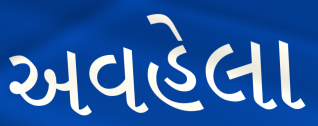
અવહેલા